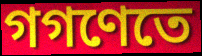
গগণেতে